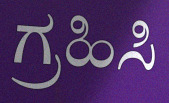
ಗ್ರಹಿಸಿ